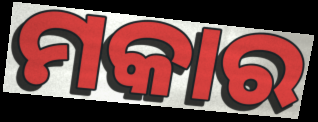
ମକାର